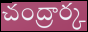
చంద్రార్క